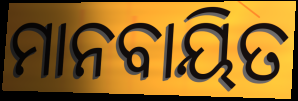
ମାନବାୟିତ